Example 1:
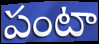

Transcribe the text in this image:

పంటా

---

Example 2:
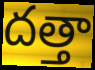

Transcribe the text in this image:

దత్తా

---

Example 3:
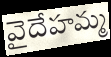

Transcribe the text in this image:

వైదేహమ్మ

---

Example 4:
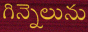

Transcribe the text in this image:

గిన్నెలును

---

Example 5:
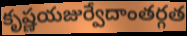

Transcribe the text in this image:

కృష్ణయజుర్వేదాంతర్గత